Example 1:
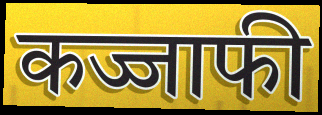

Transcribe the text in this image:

कज्जाफी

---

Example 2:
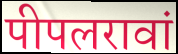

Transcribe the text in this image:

पीपलरावां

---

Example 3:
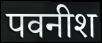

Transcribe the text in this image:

पवनीश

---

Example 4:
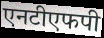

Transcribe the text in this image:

एनटीएफपी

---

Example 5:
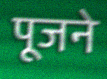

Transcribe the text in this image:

पूजने